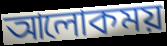
আলোকময়